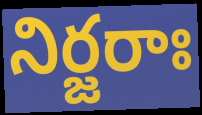
నిర్జరాః